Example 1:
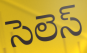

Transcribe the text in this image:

సెలెస్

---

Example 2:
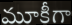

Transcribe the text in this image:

మూకీగా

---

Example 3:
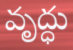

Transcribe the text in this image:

వృద్ధు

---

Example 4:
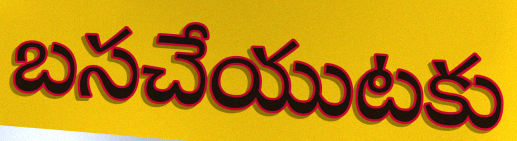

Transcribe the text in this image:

బసచేయుటకు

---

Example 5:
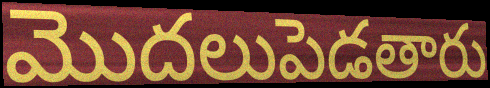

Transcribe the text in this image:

మొదలుపెడతారు